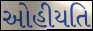
ઓહીયતિ